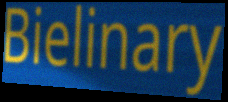
Bielinary